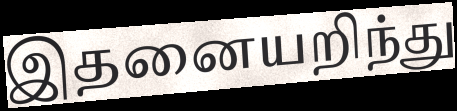
இதனையறிந்து